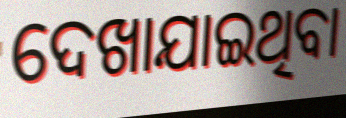
ଦେଖାଯାଇଥିବା